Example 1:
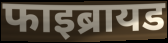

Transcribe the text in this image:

फाइब्रायड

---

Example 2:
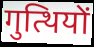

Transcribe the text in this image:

गुत्थियों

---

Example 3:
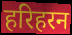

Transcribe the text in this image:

हरिहरन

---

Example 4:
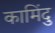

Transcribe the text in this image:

कामिंदु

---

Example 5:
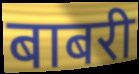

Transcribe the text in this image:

बाबरी